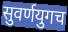
सुवर्णयुगच